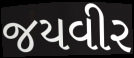
જયવીર